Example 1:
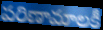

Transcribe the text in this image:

పరిణామాలకీ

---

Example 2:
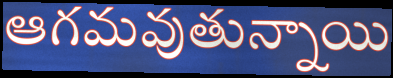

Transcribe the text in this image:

ఆగమవుతున్నాయి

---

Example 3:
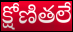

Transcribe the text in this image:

క్షోణితలే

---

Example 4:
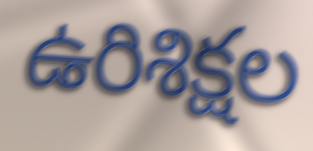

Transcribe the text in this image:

ఉరిశిక్షల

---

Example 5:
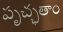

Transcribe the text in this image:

పృచ్ఛతాం